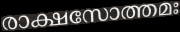
രാക്ഷസോത്തമഃ